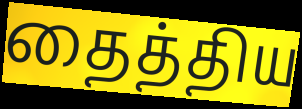
தைத்திய